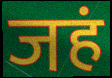
जहं